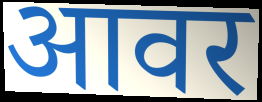
आवर